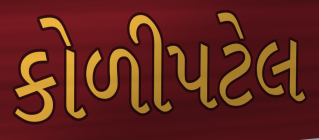
કોળીપટેલ